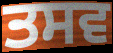
ਤਸਵ